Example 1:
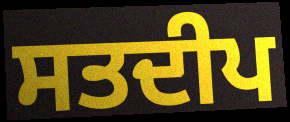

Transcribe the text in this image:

ਸਤਦੀਪ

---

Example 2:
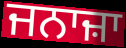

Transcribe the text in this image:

ਜਨਾਜ਼ਾ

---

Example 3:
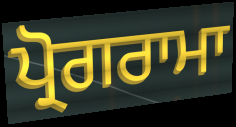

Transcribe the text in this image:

ਪ੍ਰੋਗਰਾਮਾ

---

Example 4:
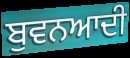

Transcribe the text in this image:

ਬੁਵਨਆਦੀ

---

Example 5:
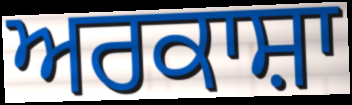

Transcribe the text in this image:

ਅਰਕਾਸ਼ਾ